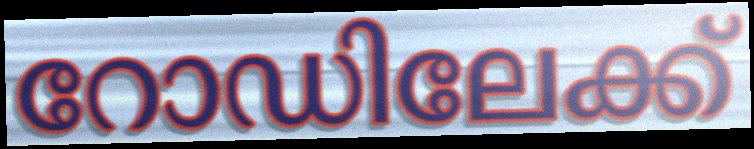
റോഡിലേക്ക്